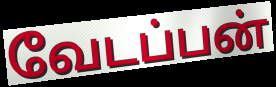
வேடப்பன்